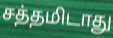
சத்தமிடாது